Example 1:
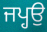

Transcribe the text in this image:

ਜਪ੍ਹਉ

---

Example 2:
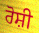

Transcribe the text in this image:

ਰੋਸ਼ੀ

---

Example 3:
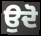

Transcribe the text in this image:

ਉਦੋ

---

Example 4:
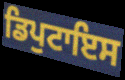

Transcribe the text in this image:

ਡਿਪੁਟਾਇਸ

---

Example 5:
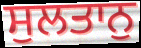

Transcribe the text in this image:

ਸੁਲਤਾਨੁ